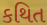
કથિત